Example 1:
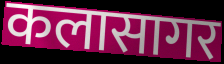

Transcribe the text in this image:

कलासागर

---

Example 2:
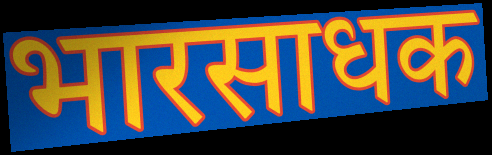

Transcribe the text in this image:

भारसाधक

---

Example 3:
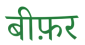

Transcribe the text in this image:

बीफ़र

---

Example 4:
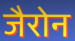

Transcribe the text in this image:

जैरोन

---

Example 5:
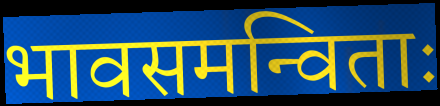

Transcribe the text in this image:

भावसमन्विताः